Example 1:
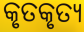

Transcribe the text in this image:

କୃତକୃତ୍ୟ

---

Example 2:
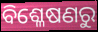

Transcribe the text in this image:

ବିଶ୍ଳେଷଣରୁ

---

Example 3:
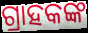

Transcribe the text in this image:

ଗ୍ରାହକଙ୍କ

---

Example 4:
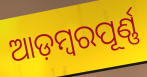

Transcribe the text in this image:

ଆଡ଼ମ୍ବରପୂର୍ଣ୍ଣ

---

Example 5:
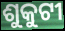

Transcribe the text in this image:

ଶୁକୁଟୀ